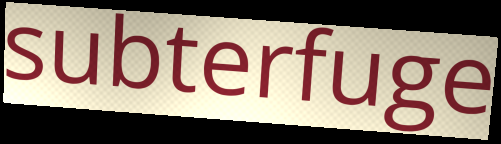
subterfuge